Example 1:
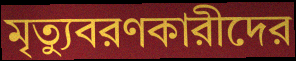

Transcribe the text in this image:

মৃত্যুবরণকারীদের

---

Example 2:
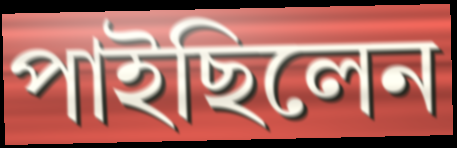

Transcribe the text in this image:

পাইছিলেন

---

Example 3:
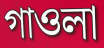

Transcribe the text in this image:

গাওলা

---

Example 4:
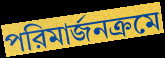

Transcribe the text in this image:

পরিমার্জনক্রমে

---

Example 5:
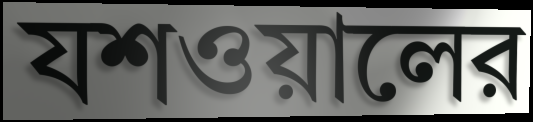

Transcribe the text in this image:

যশওয়ালের